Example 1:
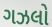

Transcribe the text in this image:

ગઝલો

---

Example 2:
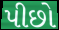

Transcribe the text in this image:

પીછો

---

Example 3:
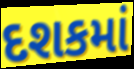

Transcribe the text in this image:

દશકમાં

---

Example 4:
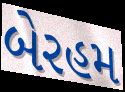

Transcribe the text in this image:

બેરહમ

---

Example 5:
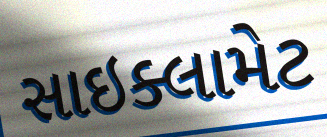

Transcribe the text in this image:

સાઇક્લામેટ